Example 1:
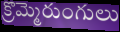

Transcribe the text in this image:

క్రొమ్మెరుంగులు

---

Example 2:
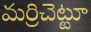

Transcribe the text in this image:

మర్రిచెట్టూ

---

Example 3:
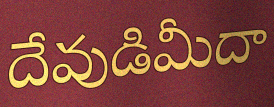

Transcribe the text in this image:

దేవుడిమీదా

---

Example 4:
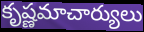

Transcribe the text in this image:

కృష్ణమాచార్యులు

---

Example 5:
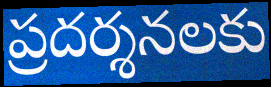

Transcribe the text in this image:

ప్రదర్శనలకు